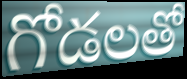
గోడలతో